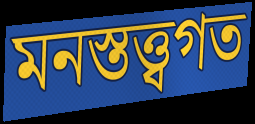
মনস্তত্ত্বগত